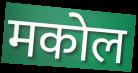
मकोल